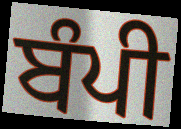
ਬੰਪੀ